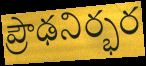
ప్రౌఢనిర్భర